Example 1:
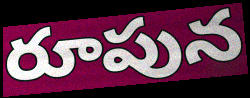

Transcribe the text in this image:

రూపున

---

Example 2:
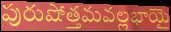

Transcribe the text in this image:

పురుషోత్తమవల్లభాయై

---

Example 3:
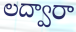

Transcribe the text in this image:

లద్వారా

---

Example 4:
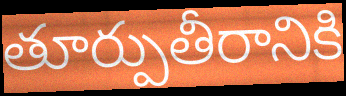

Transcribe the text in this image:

తూర్పుతీరానికి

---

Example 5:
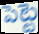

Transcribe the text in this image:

పెట్టె